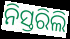
ନିସ୍ତରିଲି